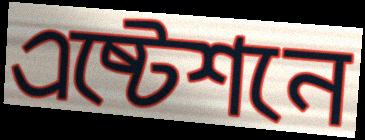
এষ্টেশনে